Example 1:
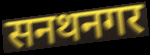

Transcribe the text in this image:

सनथनगर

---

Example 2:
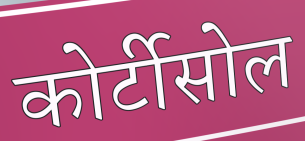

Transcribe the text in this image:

कोर्टीसोल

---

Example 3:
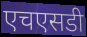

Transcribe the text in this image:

एचएसडी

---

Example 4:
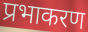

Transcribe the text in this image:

प्रभाकरण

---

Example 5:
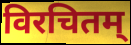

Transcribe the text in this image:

विरचितम्